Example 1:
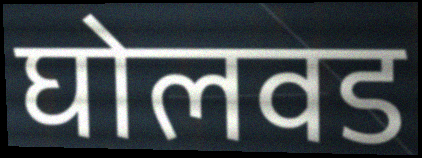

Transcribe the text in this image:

घोलवड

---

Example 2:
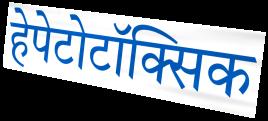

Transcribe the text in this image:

हेपेटोटॉक्सिक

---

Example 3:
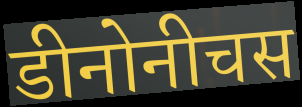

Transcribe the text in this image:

डीनोनीचस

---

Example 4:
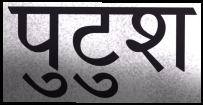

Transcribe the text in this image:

पुटुश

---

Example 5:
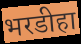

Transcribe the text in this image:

भरडीहा